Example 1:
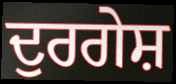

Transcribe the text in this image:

ਦੁਰਗੇਸ਼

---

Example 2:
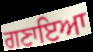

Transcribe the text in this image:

ਗਣਾਇਆ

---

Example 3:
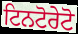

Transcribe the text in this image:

ਟਿਨਟੋਰੇਟੋ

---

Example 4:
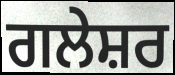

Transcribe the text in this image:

ਗਲੇਸ਼ਰ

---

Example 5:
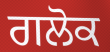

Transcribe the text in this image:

ਗਲੋਕ